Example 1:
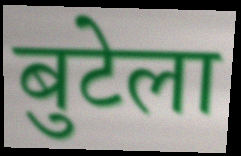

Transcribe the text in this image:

बुटेला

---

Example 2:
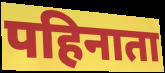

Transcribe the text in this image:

पहिनाता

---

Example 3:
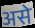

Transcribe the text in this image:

असे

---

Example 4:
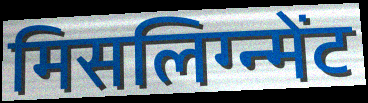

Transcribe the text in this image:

मिसलिग्न्मेंट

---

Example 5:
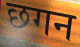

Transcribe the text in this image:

छगन